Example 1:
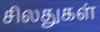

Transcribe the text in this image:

சிலதுகள்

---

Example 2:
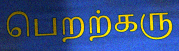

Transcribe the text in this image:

பெறற்கரு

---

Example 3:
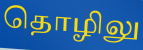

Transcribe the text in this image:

தொழிலு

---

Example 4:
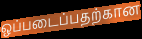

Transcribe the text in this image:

ஒப்படைப்பதற்கான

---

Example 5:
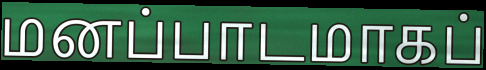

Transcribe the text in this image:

மனப்பாடமாகப்